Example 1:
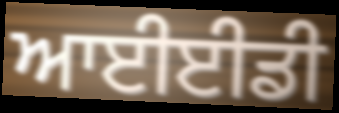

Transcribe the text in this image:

ਆਈਈਡੀ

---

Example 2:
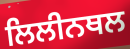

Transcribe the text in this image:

ਲਿਲੀਨਥਲ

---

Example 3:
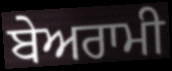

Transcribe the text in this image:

ਬੇਅਰਾਮੀ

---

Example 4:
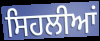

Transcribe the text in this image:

ਸਿਹਲੀਆਂ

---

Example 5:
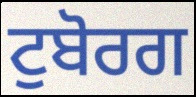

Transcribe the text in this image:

ਟੁਬੋਰਗ